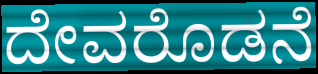
ದೇವರೊಡನೆ